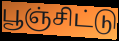
பூஞ்சிட்டு